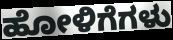
ಹೋಳಿಗೆಗಳು